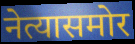
नेत्यासमोर